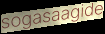
sogasaagide